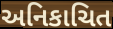
અનિકાચિત